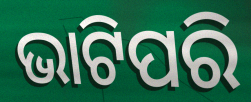
ଭାଟିପରି